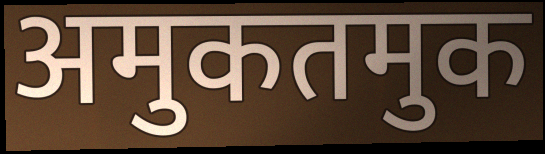
अमुकतमुक